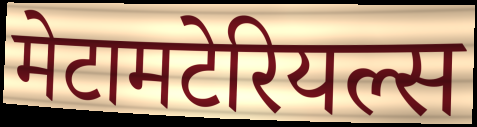
मेटामटेरियल्स